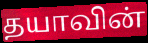
தயாவின்